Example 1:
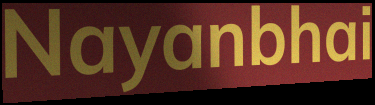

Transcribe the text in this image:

Nayanbhai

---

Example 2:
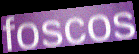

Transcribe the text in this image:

foscos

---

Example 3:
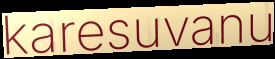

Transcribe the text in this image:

karesuvanu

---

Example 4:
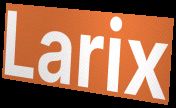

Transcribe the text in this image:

Larix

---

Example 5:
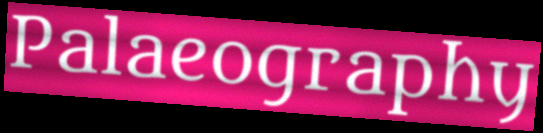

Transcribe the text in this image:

Palaeography